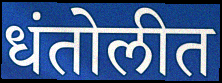
धंतोलीत